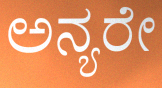
ಅನ್ಯರೇ